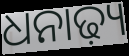
ଧନାଢ଼୍ୟ